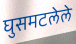
घुसमटलेले